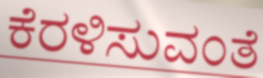
ಕೆರಳಿಸುವಂತೆ